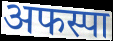
अफस्पा